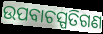
ଉପବାଚସ୍ପତିଗଣ